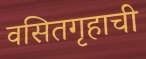
वसितगृहाची